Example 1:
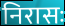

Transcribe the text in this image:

निरासः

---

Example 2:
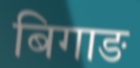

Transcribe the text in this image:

बिगाङ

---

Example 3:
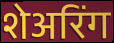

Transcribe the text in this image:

शेअरिंग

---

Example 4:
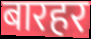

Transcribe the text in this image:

बारहर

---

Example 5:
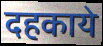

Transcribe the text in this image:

दहकाये